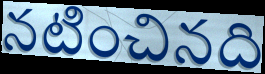
నటించినది